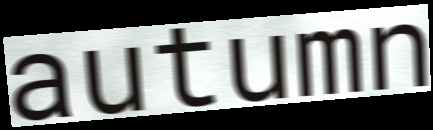
autumn